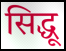
सिद्धू